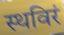
स्थविरं